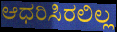
ಆಧರಿಸಿರಲಿಲ್ಲ